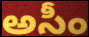
అసీం